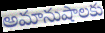
అమానుషాలకు